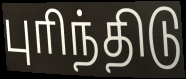
புரிந்திடு